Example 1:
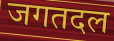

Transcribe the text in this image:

जगतदल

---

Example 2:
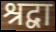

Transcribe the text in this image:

श्रद्वा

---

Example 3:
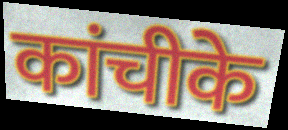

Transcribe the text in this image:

कांचीके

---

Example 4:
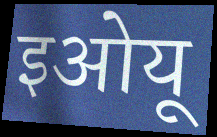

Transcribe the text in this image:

इओयू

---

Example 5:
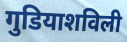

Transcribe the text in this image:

गुडियाशविली